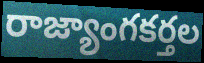
రాజ్యాంగకర్తల